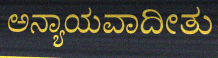
ಅನ್ಯಾಯವಾದೀತು